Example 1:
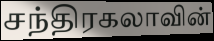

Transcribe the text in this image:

சந்திரகலாவின்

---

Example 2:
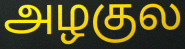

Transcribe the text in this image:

அழகுல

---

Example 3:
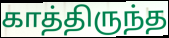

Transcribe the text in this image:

காத்திருந்த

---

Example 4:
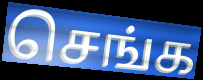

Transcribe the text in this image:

செங்க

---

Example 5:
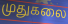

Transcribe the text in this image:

முதுகலை